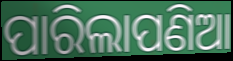
ପାରିଲାପଣିଆ